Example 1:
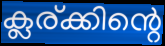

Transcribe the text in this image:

ക്ലര്ക്കിന്റെ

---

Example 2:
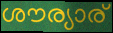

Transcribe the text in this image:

ശൗര്യാര്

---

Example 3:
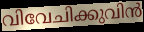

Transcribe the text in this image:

വിവേചിക്കുവിൻ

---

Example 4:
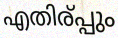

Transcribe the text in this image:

എതിര്പ്പും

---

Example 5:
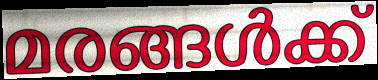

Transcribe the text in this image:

മരങ്ങൾക്ക്